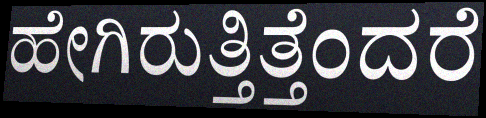
ಹೇಗಿರುತ್ತಿತ್ತೆಂದರೆ